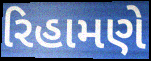
રિહામણે